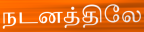
நடனத்திலே